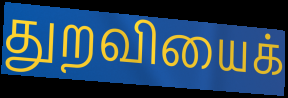
துறவியைக்